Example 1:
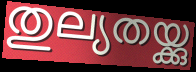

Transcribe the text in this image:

തുല്യതയ്ക്കു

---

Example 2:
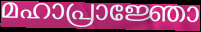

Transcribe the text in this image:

മഹാപ്രാജ്ഞോ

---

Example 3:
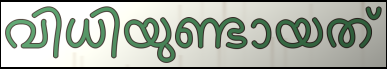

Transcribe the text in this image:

വിധിയുണ്ടായത്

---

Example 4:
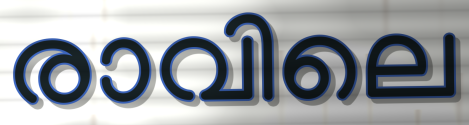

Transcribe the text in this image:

രാവിലെ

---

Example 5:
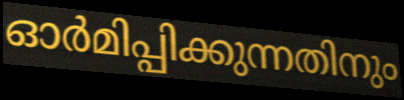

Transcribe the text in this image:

ഓർമിപ്പിക്കുന്നതിനും